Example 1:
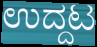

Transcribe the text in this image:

ಉದ್ದಟ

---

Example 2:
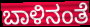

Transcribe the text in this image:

ಬಾಳಿನಂತೆ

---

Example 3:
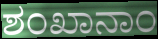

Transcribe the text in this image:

ಶಂಖಾನಾಂ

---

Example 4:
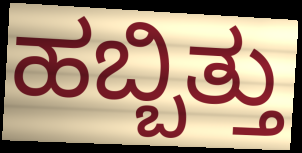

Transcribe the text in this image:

ಹಬ್ಬಿತ್ತು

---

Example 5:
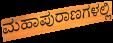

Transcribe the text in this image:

ಮಹಾಪುರಾಣಗಳಲ್ಲಿ